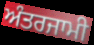
ਅੰਤਰਜਾਮੀ